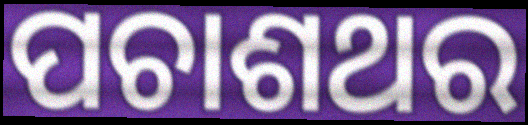
ପଚାଶଥର